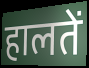
हालतें